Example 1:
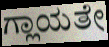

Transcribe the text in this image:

ಗ್ಲಾಯತೇ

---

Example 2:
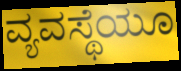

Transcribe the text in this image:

ವ್ಯವಸ್ಥೆಯೂ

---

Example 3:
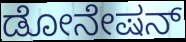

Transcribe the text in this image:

ಡೋನೇಷನ್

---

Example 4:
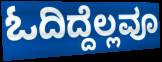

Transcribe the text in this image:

ಓದಿದ್ದೆಲ್ಲವೂ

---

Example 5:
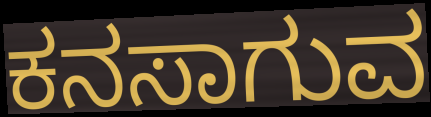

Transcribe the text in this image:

ಕನಸಾಗುವ